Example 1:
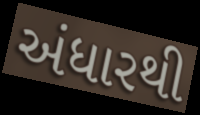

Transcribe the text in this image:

અંધારથી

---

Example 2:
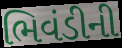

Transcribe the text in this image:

ભિવંડીની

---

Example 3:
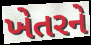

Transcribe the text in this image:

ખેતરને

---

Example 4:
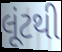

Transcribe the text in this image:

લૂંટથી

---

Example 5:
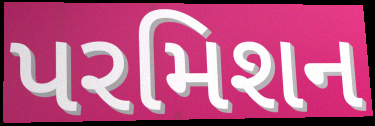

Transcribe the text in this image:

પરમિશન